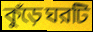
কুঁড়েঘরটি